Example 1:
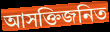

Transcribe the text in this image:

আসক্তিজনিত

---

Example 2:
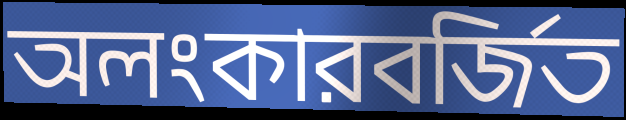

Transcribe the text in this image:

অলংকারবর্জিত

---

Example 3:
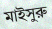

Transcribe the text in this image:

মাইসুরু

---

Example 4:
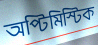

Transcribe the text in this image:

অপ্টিমিস্টিক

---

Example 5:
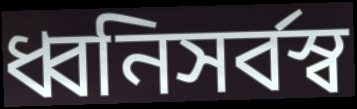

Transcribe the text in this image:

ধ্বনিসর্বস্ব